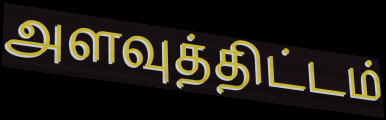
அளவுத்திட்டம்